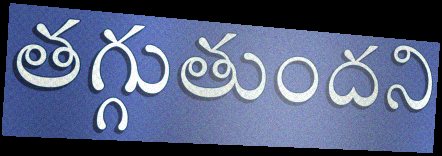
తగ్గుతుందని